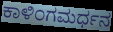
ಕಾಳಿಂಗಮರ್ಧನ